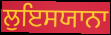
ਲੁਇਸਯਾਨਾ